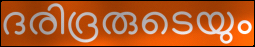
ദരിദ്രരുടെയും